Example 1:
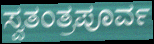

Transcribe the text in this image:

ಸ್ವತಂತ್ರಪೂರ್ವ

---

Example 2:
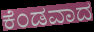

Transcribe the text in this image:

ಕೆಂಡವಾದ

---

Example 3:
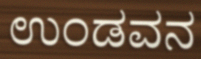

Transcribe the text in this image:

ಉಂಡವನ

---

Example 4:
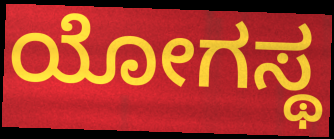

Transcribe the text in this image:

ಯೋಗಸ್ಥ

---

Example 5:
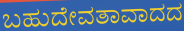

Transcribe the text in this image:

ಬಹುದೇವತಾವಾದದ